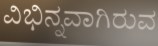
ವಿಭಿನ್ನವಾಗಿರುವ